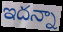
ఇదన్నా